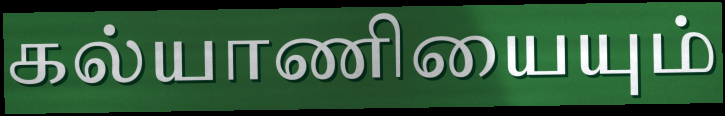
கல்யாணியையும்